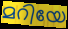
മറിയേ